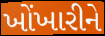
ખોંખારીને